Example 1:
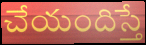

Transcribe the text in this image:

చేయందిస్తే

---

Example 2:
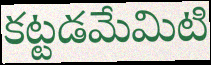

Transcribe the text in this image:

కట్టడమేమిటి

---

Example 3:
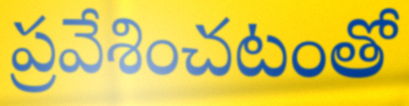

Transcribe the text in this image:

ప్రవేశించటంతో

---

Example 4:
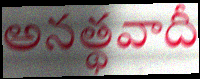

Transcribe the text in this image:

అనత్థవాదీ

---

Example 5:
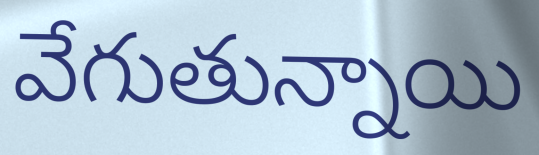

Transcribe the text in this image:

వేగుతున్నాయి